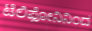
ಟೆಲಿಫೋನಿನಿಂದ